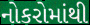
નોકરોમાંથી